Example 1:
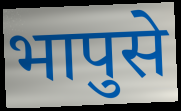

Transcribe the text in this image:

भापुसे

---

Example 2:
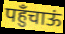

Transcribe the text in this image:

पहुँचाऊं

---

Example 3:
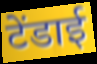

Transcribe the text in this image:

टेंडाई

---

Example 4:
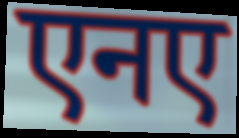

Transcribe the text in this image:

एनए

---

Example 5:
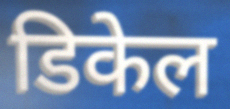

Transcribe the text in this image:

डिकेल